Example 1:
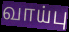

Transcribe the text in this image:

வாய்பு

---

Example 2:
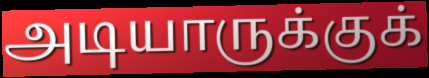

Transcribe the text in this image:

அடியாருக்குக்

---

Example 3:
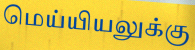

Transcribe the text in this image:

மெய்யியலுக்கு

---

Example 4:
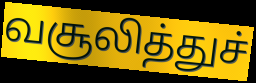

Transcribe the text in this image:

வசூலித்துச்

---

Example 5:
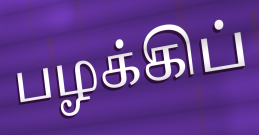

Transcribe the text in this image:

பழக்கிப்